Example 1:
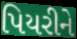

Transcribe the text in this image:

પિયરીને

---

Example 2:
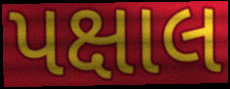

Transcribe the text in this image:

પક્ષાલ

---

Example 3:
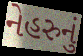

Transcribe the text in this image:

નેહરુનું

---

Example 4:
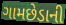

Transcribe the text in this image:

ગામછેડાની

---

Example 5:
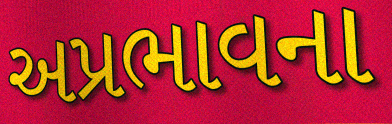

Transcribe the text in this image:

અપ્રભાવના